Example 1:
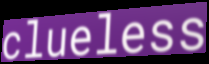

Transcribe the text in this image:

clueless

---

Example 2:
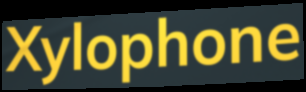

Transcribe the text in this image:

Xylophone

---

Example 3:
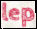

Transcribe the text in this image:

lep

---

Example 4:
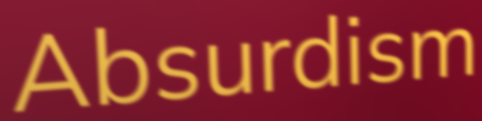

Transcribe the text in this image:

Absurdism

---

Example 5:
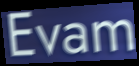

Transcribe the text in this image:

Evam